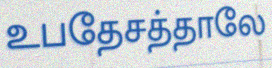
உபதேசத்தாலே